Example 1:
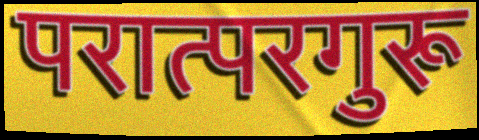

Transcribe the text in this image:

परात्परगुरू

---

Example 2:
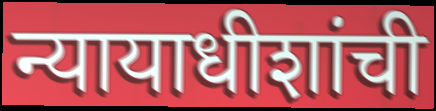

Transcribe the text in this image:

न्यायाधीशांची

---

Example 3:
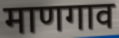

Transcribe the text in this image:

माणगाव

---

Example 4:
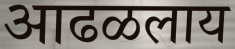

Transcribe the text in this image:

आढळलाय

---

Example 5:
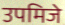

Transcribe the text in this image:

उपमिजे